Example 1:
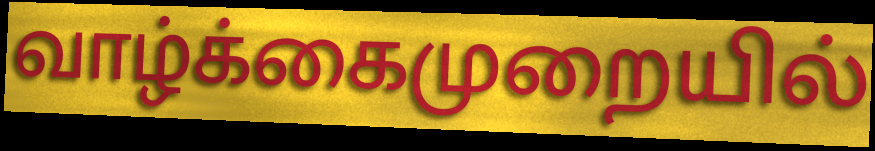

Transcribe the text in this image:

வாழ்க்கைமுறையில்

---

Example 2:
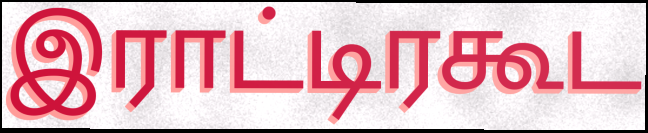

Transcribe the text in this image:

இராட்டிரகூட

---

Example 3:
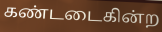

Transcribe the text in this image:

கண்டடைகின்ற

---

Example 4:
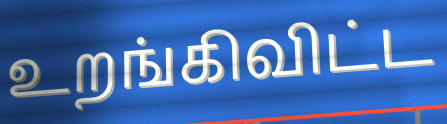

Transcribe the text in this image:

உறங்கிவிட்ட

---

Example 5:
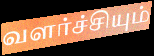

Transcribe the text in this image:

வளர்ச்சியும்